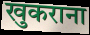
खुकराना